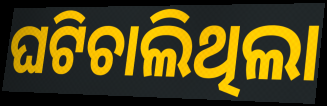
ଘଟିଚାଲିଥିଲା